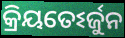
କ୍ରିୟତେଽର୍ଜୁନ